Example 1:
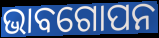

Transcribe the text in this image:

ଭାବଗୋପନ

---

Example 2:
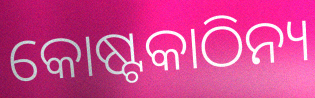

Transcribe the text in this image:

କୋଷ୍ଟକାଠିନ୍ୟ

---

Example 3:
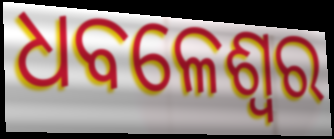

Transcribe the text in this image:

ଧବଳେଶ୍ଵର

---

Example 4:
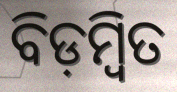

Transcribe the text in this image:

ବିଡ଼ମ୍ବିତ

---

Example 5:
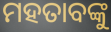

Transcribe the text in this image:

ମହତାବଙ୍କୁ